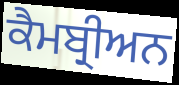
ਕੈਮਬ੍ਰੀਅਨ